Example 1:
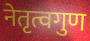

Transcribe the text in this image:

नेतृत्वगुण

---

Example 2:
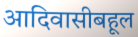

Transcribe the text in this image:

आदिवासीबहूल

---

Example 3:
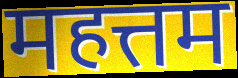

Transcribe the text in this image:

महत्तम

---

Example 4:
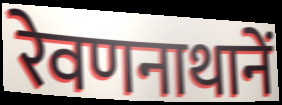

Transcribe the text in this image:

रेवणनाथानें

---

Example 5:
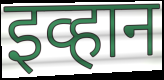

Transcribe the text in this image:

इव्हान